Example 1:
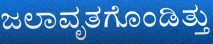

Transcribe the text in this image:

ಜಲಾವೃತಗೊಂಡಿತ್ತು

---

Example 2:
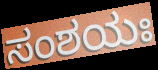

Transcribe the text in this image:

ಸಂಶಯಃ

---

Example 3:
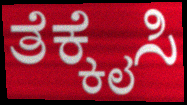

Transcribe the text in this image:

ತೆಕ್ಕೈಸಿ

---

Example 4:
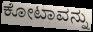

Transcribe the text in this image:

ಕೋಟಾವನ್ನು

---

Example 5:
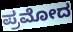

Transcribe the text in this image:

ಪ್ರಮೋದ